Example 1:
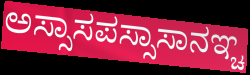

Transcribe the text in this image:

ಅಸ್ಸಾಸಪಸ್ಸಾಸಾನಞ್ಚ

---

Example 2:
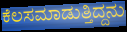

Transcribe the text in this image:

ಕೆಲಸಮಾಡುತ್ತಿದ್ದನು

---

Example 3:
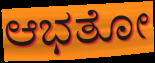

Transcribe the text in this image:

ಆಭತೋ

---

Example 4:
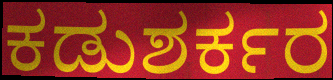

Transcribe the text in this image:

ಕಡುಶರ್ಕರ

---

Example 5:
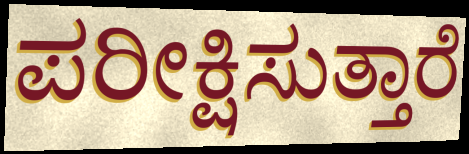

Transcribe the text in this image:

ಪರೀಕ್ಷಿಸುತ್ತಾರೆ